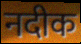
नदीक